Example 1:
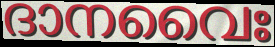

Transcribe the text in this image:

ദാനവൈഃ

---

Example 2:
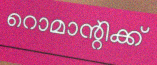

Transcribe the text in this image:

റൊമാന്റിക്ക്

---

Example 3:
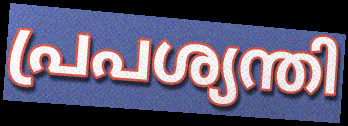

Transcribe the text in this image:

പ്രപശ്യന്തി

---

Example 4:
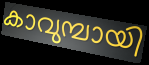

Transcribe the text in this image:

കാവുമ്പായി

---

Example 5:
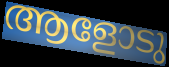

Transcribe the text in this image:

ആളോടു